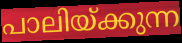
പാലിയ്ക്കുന്ന